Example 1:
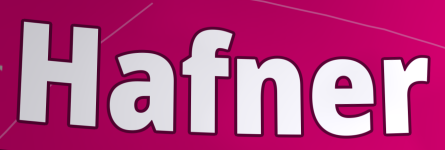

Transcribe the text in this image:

Hafner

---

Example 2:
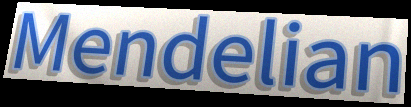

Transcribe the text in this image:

Mendelian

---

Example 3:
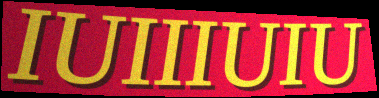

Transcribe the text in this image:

IUIIIUIU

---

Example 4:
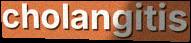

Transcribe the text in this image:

cholangitis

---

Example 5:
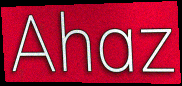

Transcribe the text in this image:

Ahaz